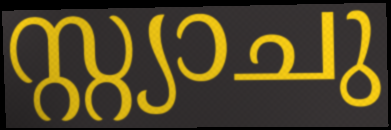
സ്റ്റ്യാചു